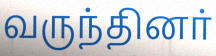
வருந்தினர்